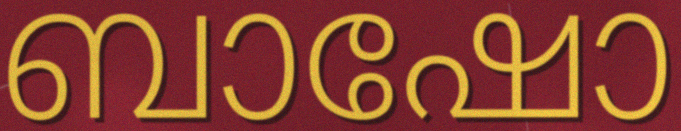
ബാഷോ